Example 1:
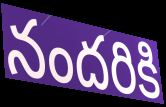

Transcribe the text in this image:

నందరికి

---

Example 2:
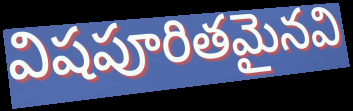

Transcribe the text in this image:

విషపూరితమైనవి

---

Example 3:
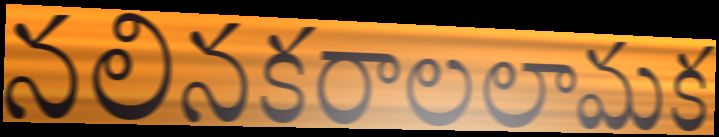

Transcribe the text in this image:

నలినకరాలలామక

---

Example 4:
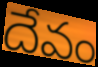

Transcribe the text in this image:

దేవం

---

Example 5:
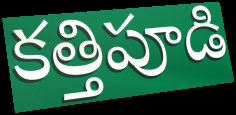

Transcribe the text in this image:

కత్తిపూడి